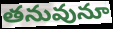
తనువునూ